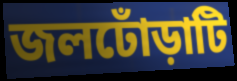
জলঢোঁড়াটি